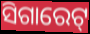
ସିଗାରେଟ୍